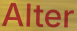
Alter